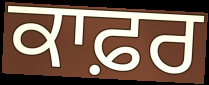
ਕਾਫ਼ਰ